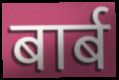
बार्ब